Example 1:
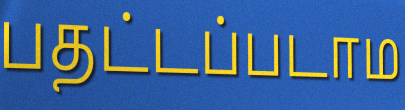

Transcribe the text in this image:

பதட்டப்படாம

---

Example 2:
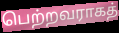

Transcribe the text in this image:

பெற்றவராகத்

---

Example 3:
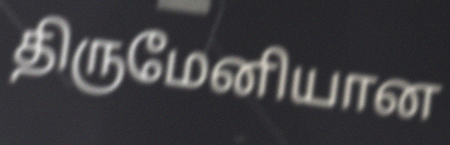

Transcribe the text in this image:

திருமேனியான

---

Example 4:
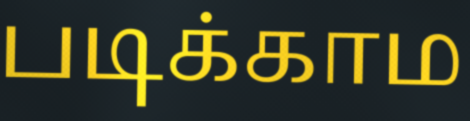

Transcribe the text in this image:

படிக்காம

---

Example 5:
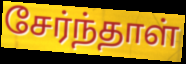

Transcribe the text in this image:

சேர்ந்தாள்